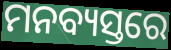
ମନବ୍ୟସ୍ତରେ